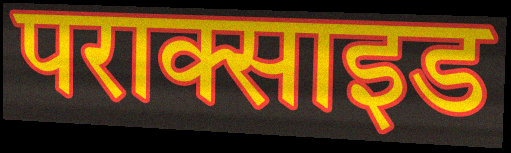
पराक्साइड